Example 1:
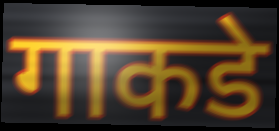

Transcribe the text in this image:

गाकडे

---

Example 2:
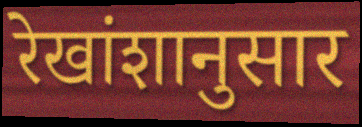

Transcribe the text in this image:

रेखांशानुसार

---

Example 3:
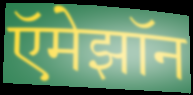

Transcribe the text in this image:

ऍमेझॉन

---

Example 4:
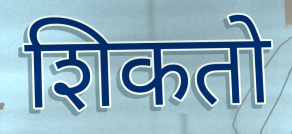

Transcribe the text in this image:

शिकतो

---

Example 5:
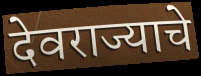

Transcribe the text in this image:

देवराज्याचे